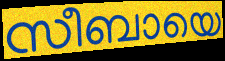
സീബായെ